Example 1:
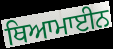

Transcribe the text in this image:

ਥਿਆਮਾਈਨ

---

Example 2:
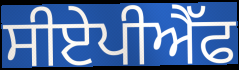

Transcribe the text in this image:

ਸੀਏਪੀਐੱਫ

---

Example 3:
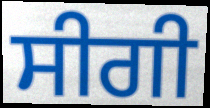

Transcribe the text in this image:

ਸੀਗੀ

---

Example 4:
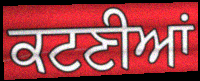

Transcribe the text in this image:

ਕਟਣੀਆਂ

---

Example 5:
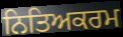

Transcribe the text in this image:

ਨਿਤਿਅਕਰਮ